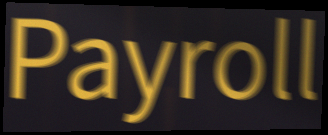
Payroll